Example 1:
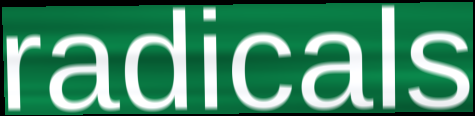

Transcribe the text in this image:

radicals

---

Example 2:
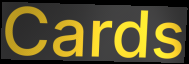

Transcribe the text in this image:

Cards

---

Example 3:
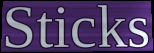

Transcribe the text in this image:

Sticks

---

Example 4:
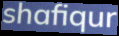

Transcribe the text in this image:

shafiqur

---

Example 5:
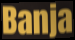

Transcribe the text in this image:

Banja